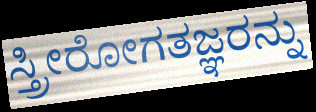
ಸ್ತ್ರೀರೋಗತಜ್ಞರನ್ನು